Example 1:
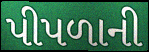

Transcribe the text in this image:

પીપળાની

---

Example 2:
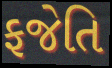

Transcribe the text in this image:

ફજેતિ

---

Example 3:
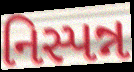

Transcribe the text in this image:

નિસ્પન્ન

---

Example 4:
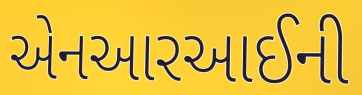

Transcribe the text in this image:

એનઆરઆઈની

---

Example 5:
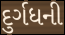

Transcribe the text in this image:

દુર્ગધની